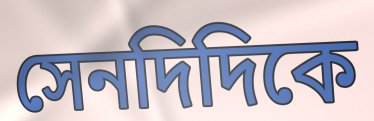
সেনদিদিকে